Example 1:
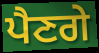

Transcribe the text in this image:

ਪੈਣਗੇ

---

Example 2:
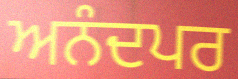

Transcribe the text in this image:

ਅਨੰਦਪਰ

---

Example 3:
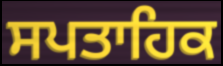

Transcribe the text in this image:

ਸਪਤਾਹਿਕ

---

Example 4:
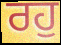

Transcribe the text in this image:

ਰਹੁ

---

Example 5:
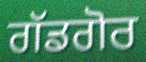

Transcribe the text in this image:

ਗੱਡਗੋਰ